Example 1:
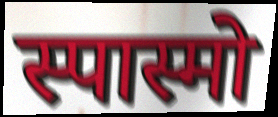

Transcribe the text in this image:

स्पास्मो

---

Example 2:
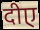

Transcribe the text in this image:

दीए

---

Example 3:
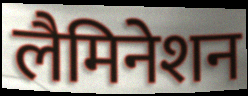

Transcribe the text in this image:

लैमिनेशन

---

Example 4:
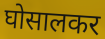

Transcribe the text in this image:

घोसालकर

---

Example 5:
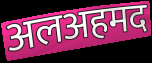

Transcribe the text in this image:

अलअहमद